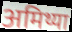
अमिथ्या